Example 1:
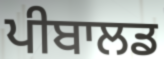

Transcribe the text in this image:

ਪੀਬਾਲਡ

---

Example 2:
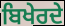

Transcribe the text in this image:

ਬਿਖੇਰਦੇ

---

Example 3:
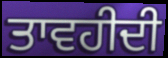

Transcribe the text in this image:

ਤਾਵਹੀਦੀ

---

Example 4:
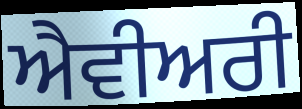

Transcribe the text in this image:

ਐਵੀਅਰੀ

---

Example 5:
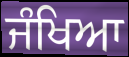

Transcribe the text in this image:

ਜੰਖਿਆ